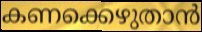
കണക്കെഴുതാൻ